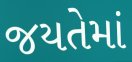
જયતેમાં